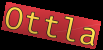
Ottla